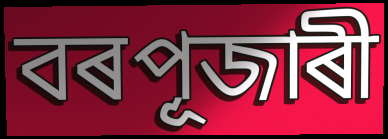
বৰপূজাৰী